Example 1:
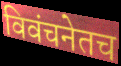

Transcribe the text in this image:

विवंचनेतच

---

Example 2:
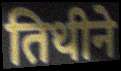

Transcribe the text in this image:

तिथीने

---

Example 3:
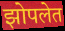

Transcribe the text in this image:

झोपलेत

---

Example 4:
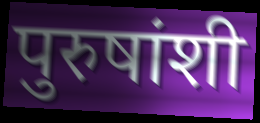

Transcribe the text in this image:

पुरुषांशी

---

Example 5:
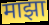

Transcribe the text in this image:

माझा